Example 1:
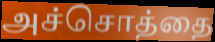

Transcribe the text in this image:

அச்சொத்தை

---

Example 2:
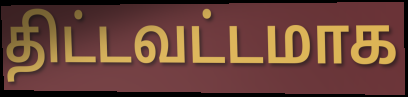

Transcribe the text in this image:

திட்டவட்டமாக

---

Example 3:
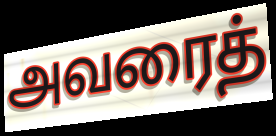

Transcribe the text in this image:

அவரைத்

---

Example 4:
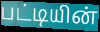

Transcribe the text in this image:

பட்டியின்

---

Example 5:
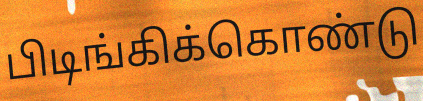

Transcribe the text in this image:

பிடிங்கிக்கொண்டு